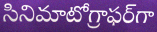
సినిమాటోగ్రాఫర్‌గా